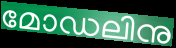
മോഡലിനു